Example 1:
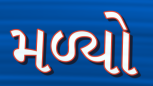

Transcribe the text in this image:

મળ્યો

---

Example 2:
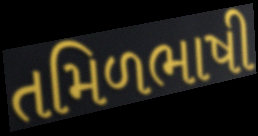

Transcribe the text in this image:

તમિળભાષી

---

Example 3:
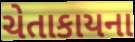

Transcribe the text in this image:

ચેતાકાયના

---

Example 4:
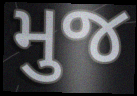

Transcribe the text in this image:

મુજ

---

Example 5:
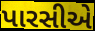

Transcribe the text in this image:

પારસીએ